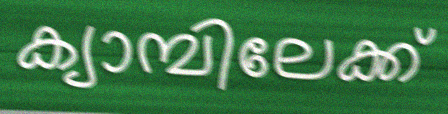
ക്യാമ്പിലേക്ക്